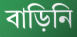
বাড়িনি